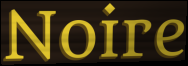
Noire